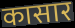
कासार